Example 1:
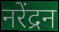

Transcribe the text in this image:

नरेंद्रन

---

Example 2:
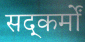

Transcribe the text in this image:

सद्कर्मों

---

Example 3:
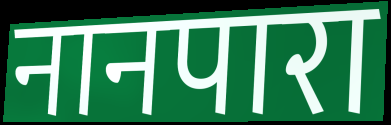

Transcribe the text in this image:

नानपारा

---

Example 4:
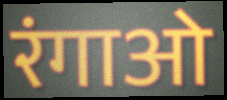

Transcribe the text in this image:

रंगाओ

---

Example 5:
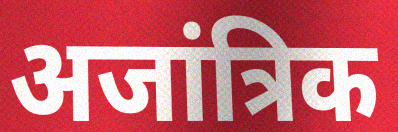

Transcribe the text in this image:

अजांत्रिक